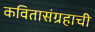
कवितासंग्रहाची